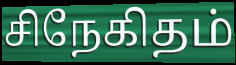
சிநேகிதம்